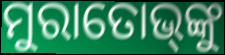
ମୁରାତୋଭ୍‌ଙ୍କୁ